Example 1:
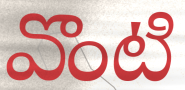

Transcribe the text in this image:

వొంటి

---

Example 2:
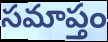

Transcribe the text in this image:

సమాప్తం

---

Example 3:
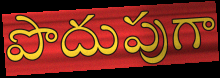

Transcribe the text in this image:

పొదుపుగా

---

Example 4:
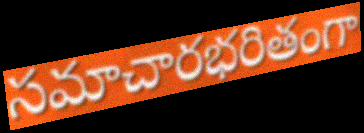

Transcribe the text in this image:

సమాచారభరితంగా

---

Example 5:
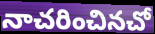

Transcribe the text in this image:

నాచరించినచో